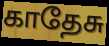
காதேசு